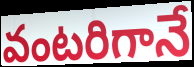
వంటరిగానే